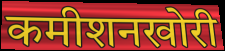
कमीशनखोरी